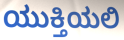
ಯುಕ್ತಿಯಲಿ